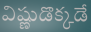
విష్ణుడొక్కడే